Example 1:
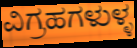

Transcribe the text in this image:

ವಿಗ್ರಹಗಳುಳ್ಳ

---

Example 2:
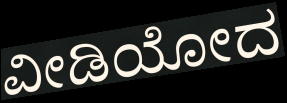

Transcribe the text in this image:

ವೀಡಿಯೋದ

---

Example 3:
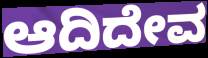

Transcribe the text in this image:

ಆದಿದೇವ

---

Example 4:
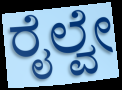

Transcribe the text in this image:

ರೈಲ್ವೇ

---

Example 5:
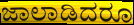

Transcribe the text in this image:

ಜಾಲಾಡಿದರೂ